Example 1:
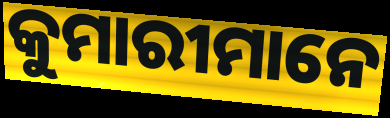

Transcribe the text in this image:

କୁମାରୀମାନେ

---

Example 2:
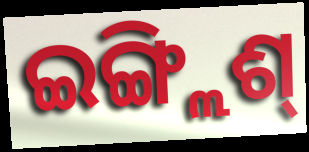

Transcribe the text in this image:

ଇଙ୍ଗ୍ଲିଶ୍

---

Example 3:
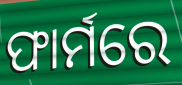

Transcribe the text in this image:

ଫାର୍ମରେ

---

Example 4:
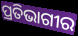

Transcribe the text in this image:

ପ୍ରତିଭାଗୀର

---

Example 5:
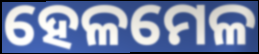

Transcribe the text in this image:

ହେଳମେଳ